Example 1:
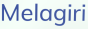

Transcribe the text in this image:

Melagiri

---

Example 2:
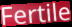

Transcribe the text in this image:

Fertile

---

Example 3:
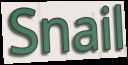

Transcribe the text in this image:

Snail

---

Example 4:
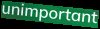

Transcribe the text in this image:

unimportant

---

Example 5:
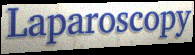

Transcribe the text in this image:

Laparoscopy